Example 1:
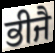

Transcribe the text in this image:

ਭੀਜੈ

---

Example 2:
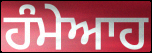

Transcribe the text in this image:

ਹੰਮੇਆਹ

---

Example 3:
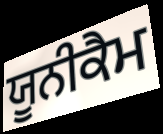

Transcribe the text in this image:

ਯੂਨੀਕੈਮ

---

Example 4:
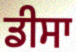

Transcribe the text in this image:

ਡੀਸਾ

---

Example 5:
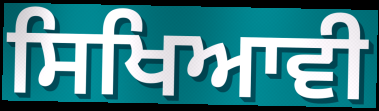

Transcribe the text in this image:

ਸਿਖਿਆਵੀ